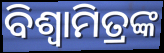
ବିଶ୍ବାମିତ୍ରଙ୍କ